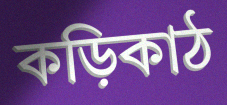
কড়িকাঠ